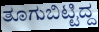
ತೂಗುಬಿಟ್ಟಿದ್ದ